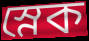
স্নেক